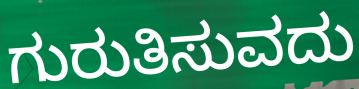
ಗುರುತಿಸುವದು